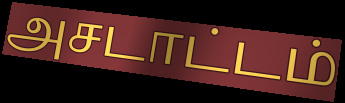
அசடாட்டம்